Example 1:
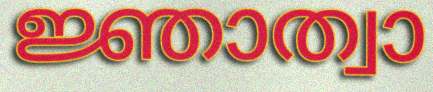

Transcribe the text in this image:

ജ്ഞാത്വാ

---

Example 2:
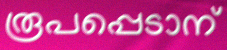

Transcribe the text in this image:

രൂപപ്പെടാന്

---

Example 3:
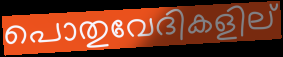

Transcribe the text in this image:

പൊതുവേദികളില്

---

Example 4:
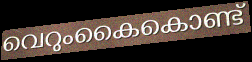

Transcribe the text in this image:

വെറുംകൈകൊണ്ട്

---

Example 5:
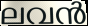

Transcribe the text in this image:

ലവൻ